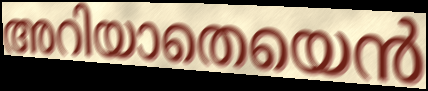
അറിയാതെയെൻ